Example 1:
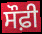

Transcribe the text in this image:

ਸੌਫ਼ੀ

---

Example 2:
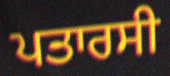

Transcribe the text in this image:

ਪਤਾਰਸੀ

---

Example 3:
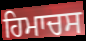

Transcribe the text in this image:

ਹਿਮਾਚਸ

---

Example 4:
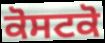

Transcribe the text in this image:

ਕੋਸਟਕੋ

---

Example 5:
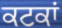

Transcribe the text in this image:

ਕਟਕਾਂ